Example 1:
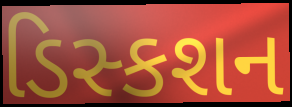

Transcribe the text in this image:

ડિસ્કશન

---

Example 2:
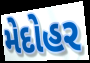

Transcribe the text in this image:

મેદોહર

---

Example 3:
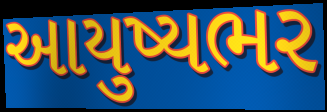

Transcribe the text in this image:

આયુષ્યભર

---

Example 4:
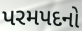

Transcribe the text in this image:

પરમપદનો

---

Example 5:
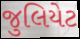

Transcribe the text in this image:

જુલિયેટ